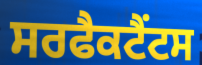
ਸਰਫੈਕਟੈਂਟਸ